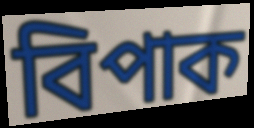
বিপাক